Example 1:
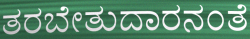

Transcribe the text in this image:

ತರಬೇತುದಾರನಂತೆ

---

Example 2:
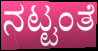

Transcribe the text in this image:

ನಟ್ಟಂತೆ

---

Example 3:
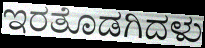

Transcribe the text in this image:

ಇರತೊಡಗಿದಳು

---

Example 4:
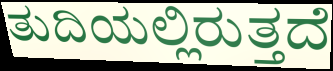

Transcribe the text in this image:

ತುದಿಯಲ್ಲಿರುತ್ತದೆ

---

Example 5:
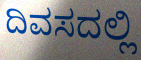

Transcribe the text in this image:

ದಿವಸದಲ್ಲಿ